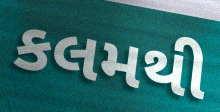
કલમથી